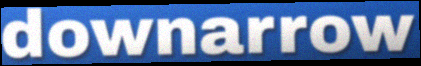
downarrow